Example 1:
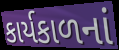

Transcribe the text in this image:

કાર્યકાળનાં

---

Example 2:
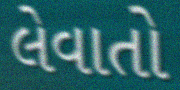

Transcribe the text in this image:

લેવાતો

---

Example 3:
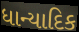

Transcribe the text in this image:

ધાન્યાદિક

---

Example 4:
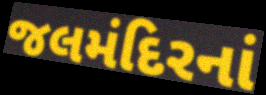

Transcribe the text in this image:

જલમંદિરનાં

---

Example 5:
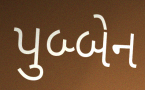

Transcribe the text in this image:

પુબ્બેન